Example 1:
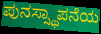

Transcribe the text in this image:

ಪುನಸ್ಸ್ಥಾಪನೆಯ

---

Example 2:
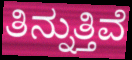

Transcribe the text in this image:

ತಿನ್ನುತ್ತಿವೆ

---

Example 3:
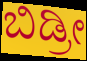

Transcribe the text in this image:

ಬಿಡ್ರೀ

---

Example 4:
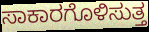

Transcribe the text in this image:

ಸಾಕಾರಗೊಳಿಸುತ್ತ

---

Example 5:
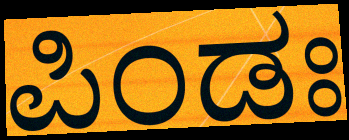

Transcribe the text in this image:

ಪಿಂಡಃ